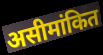
असीमांकित